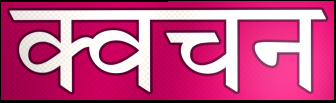
क्वचन